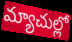
మ్యాచుల్లో